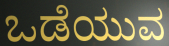
ಒಡೆಯುವ